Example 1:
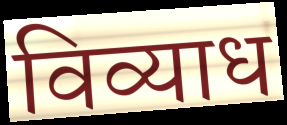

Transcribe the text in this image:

विव्याध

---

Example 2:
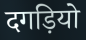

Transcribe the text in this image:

दगड़ियो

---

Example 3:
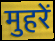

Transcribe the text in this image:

मुहरें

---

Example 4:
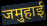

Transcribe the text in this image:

जमुहाई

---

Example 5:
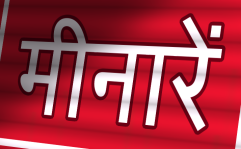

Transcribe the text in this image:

मीनारें